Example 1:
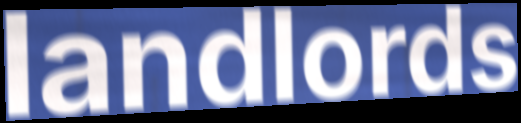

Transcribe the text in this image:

landlords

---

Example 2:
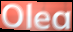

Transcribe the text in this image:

Olea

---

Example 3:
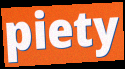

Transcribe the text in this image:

piety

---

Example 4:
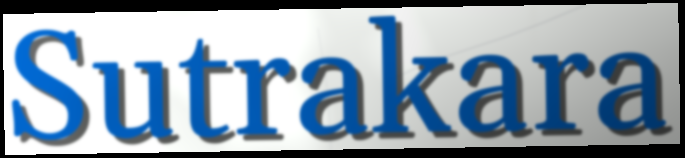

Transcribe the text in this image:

Sutrakara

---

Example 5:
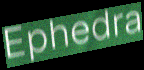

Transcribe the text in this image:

Ephedra